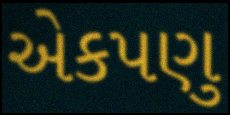
એકપણુ